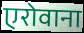
एरोवाना